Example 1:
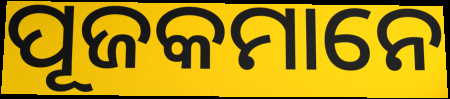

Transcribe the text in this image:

ପୂଜକମାନେ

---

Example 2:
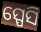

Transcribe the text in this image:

ସ୍ପେସି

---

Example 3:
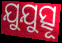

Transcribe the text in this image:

ଯୁଯୁତ୍ସୂ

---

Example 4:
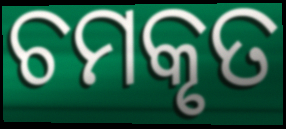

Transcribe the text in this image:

ଚମକୃତ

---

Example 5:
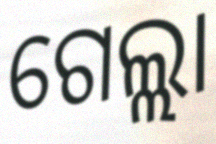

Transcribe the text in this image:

ଗେଲ୍ଲା